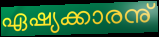
ഏഷ്യക്കാരനു്